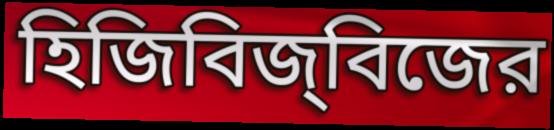
হিজিবিজ্‌বিজের